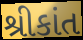
શ્રીકાંત